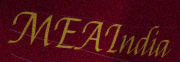
MEAIndia